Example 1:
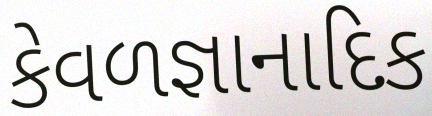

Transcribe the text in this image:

કેવળજ્ઞાનાદિક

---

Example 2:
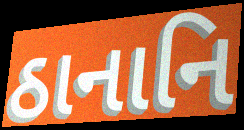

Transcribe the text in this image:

ઠાનાનિ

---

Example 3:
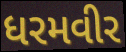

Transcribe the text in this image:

ધરમવીર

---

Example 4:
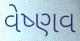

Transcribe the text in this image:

વેષ્ણવ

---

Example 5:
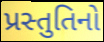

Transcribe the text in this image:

પ્રસ્તુતિનો